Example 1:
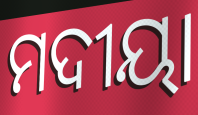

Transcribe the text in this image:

ମଦୀୟା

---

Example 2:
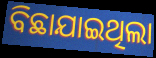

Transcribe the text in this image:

ବିଛାଯାଇଥିଲା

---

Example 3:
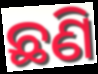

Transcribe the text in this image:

ଛଣି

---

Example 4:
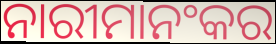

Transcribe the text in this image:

ନାରୀମାନଂକର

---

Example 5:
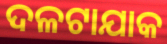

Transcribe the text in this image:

ଦଳଟାଯାକ